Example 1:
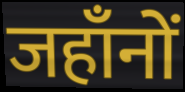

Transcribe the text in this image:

जहाँनों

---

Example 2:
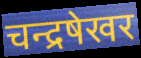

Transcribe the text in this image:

चन्द्रषेखर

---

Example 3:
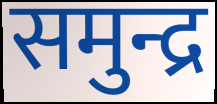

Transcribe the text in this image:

समुन्द्र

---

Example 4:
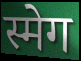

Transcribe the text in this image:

स्मेग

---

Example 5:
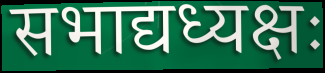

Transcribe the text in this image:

सभाद्यध्यक्षः